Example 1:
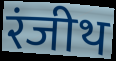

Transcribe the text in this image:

रंजीथ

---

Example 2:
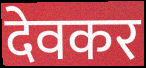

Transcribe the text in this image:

देवकर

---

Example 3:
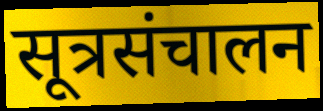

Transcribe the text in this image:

सूत्रसंचालन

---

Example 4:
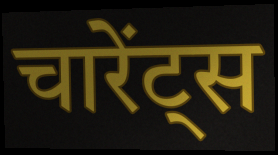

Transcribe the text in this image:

चारेंट्स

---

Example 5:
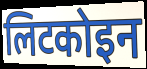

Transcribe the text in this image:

लिटकोइन